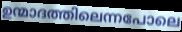
ഉന്മാദത്തിലെന്നപോലെ